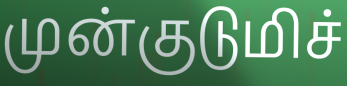
முன்குடுமிச்